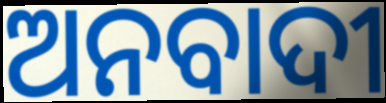
ଅନବାଦୀ